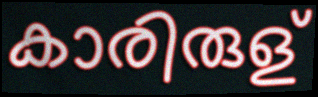
കാരിരുള്